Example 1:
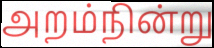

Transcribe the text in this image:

அறம்நின்று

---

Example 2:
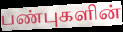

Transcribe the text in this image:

பண்புகளின்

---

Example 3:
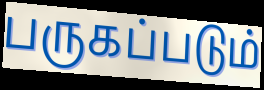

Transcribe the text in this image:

பருகப்படும்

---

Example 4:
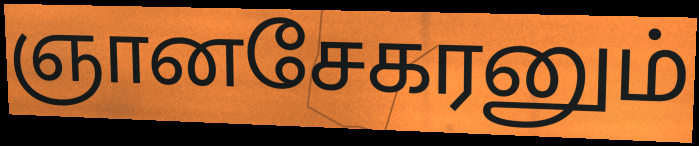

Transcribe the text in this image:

ஞானசேகரனும்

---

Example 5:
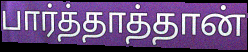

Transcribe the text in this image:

பார்த்தாத்தான்